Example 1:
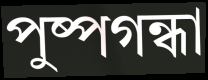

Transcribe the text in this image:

পুষ্পগন্ধা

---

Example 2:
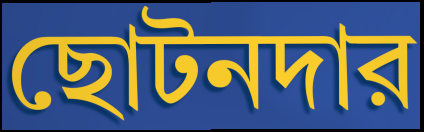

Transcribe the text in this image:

ছোটনদার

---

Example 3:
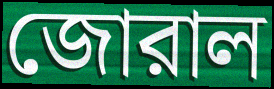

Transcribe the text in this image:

জোরাল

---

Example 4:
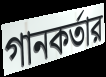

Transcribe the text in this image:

গানকর্তার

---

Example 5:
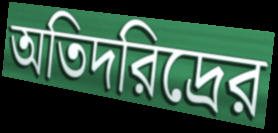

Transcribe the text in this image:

অতিদরিদ্রের